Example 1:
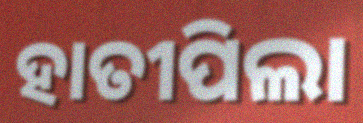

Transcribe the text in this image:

ହାତୀପିଲା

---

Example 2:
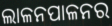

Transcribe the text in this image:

ଲାଳନପାଳନର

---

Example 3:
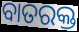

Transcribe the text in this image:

ବାତରକ୍ତ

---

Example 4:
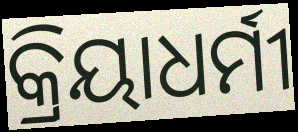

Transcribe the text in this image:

କ୍ରିୟାଧର୍ମୀ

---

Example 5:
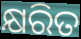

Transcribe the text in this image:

କ୍ଷରିତ